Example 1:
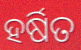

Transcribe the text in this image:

ହର୍ଷିତ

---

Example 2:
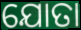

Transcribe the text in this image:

ଯୋତା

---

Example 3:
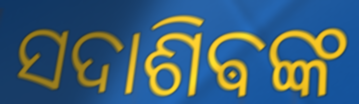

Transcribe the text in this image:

ସଦାଶିଵଙ୍କ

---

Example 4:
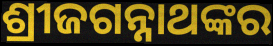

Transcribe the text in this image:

ଶ୍ରୀଜଗନ୍ନାଥଙ୍କର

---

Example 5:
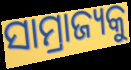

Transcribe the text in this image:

ସାମ୍ରାଜ୍ୟକୁ